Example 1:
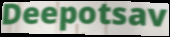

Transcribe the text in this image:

Deepotsav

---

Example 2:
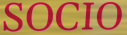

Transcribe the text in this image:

SOCIO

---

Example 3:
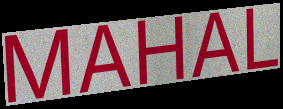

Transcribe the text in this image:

MAHAL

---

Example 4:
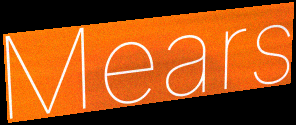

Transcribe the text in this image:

Mears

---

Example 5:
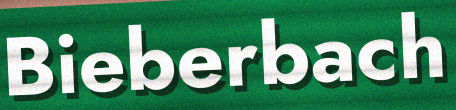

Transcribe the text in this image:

Bieberbach